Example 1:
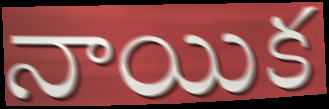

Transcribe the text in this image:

నాయిక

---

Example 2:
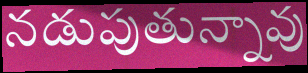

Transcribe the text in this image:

నడుపుతున్నావు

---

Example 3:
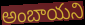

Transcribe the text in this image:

అంబాయని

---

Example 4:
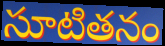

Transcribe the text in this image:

సూటితనం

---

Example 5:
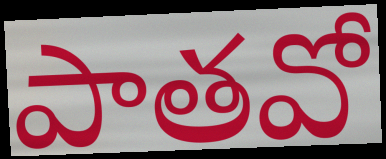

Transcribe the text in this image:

పాతవో